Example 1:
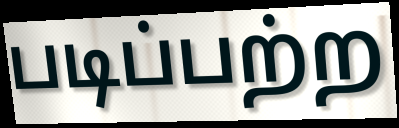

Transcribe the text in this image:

படிப்பற்ற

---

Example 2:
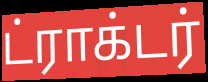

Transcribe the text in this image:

ட்ராக்டர்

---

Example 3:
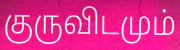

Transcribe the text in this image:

குருவிடமும்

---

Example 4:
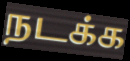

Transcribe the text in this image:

நடக்க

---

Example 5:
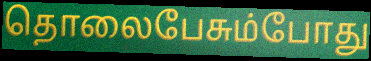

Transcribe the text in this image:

தொலைபேசும்போது